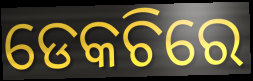
ଡେକଚିରେ